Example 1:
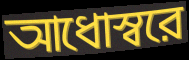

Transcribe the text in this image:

আধোস্বরে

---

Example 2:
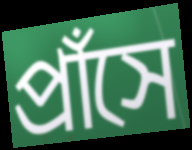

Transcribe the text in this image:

প্রাঁসে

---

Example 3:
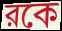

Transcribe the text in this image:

রকে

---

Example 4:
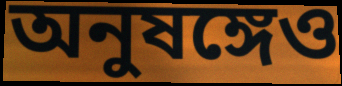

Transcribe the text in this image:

অনুষঙ্গেও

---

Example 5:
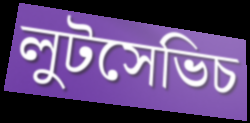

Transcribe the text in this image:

লুটসেভিচ